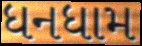
ધનધામ